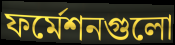
ফর্মেশনগুলো